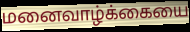
மனைவாழ்க்கையை